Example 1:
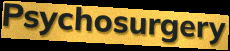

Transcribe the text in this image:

Psychosurgery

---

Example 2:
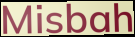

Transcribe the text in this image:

Misbah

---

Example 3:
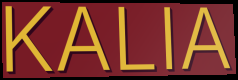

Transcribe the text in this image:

KALIA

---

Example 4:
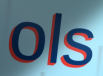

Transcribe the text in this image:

ols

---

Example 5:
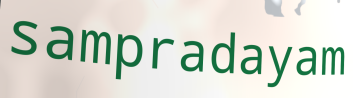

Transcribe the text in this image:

sampradayam